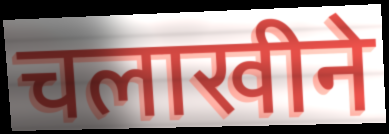
चलाखीने